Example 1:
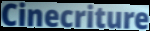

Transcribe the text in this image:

Cinecriture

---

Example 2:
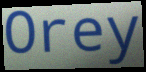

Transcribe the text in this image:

Orey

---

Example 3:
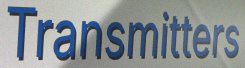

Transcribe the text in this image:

Transmitters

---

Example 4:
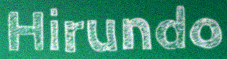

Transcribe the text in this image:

Hirundo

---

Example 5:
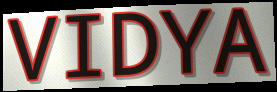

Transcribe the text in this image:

VIDYA